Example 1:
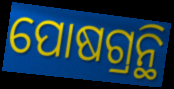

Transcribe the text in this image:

ପୋଷଗ୍ରନ୍ଥି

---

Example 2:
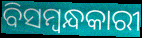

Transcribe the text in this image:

ବିସମ୍ବନ୍ଧକାରୀ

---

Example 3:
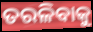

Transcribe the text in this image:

ତରଳିବାକୁ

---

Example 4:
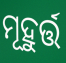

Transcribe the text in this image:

ମୂହୁର୍ତ୍ତ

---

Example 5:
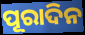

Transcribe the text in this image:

ପୂରାଦିନ